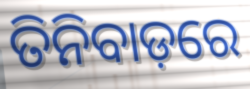
ତିନିବାଡ଼ରେ